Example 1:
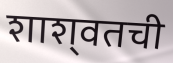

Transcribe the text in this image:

शाश्वतची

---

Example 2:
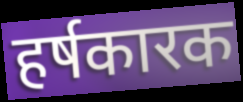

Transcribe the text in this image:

हर्षकारक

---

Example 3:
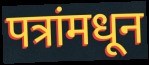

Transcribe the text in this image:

पत्रांमधून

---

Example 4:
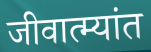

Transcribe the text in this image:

जीवात्म्यांत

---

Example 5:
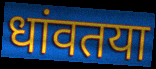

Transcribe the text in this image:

धांवतया